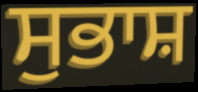
ਸੁਭਾਸ਼